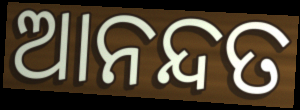
ଆନନ୍ଦତ